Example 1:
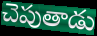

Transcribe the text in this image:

చెపుతాడు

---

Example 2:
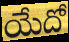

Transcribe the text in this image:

యేదో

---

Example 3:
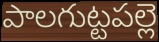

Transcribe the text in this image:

పాలగుట్టపల్లె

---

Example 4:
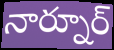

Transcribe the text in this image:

నార్నూర్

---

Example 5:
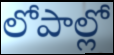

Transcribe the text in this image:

లోపాల్లో